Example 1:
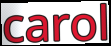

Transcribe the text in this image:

carol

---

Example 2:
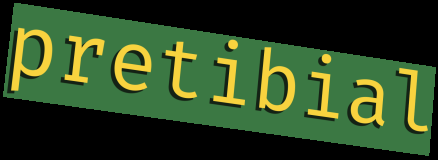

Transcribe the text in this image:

pretibial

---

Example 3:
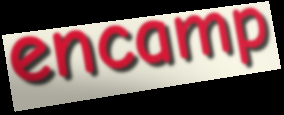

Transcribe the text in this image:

encamp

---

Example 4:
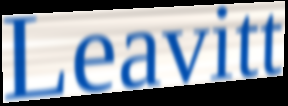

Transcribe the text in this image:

Leavitt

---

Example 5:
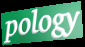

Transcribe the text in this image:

pology